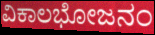
ವಿಕಾಲಭೋಜನಂ